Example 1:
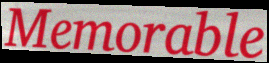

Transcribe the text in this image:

Memorable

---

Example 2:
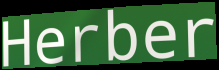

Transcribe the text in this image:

Herber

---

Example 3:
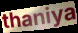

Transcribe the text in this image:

thaniya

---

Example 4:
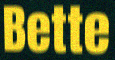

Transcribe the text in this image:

Bette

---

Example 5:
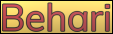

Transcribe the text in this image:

Behari